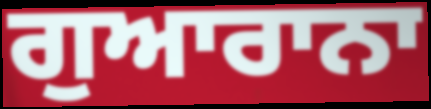
ਗੁਆਰਾਨਾ